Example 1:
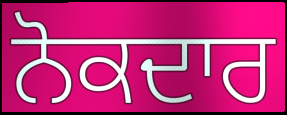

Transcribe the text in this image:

ਨੋਕਦਾਰ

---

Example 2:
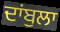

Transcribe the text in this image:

ਦਾਂਬੁਲਾ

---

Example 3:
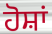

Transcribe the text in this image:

ਹੋਸ਼ਾਂ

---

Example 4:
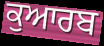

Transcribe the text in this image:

ਕੁਆਰਬ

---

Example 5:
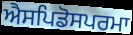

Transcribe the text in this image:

ਐਸਪਿਡੋਸਪਰਮਾ